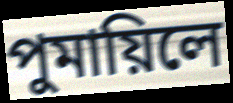
পুমায়িলে